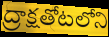
ద్రాక్షతోటలోని